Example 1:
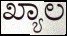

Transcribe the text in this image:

ಖ್ಯಾಲ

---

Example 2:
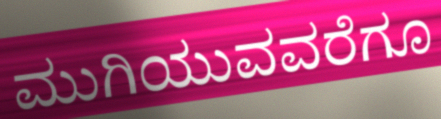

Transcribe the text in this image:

ಮುಗಿಯುವವರೆಗೂ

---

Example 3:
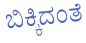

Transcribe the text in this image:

ಬಿಕ್ಕಿದಂತೆ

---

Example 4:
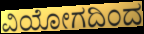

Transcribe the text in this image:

ವಿಯೋಗದಿಂದ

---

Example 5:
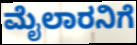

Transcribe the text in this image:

ಮೈಲಾರನಿಗೆ